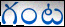
గంట